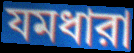
যমধারা